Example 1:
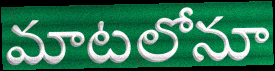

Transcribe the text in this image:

మాటలోనూ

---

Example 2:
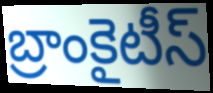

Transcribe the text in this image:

బ్రాంకైటీస్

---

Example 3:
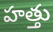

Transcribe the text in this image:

హత్తు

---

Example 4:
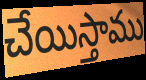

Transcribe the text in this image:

చేయిస్తాము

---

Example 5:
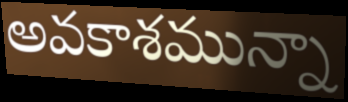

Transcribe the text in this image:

అవకాశమున్నా